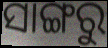
ସାଙ୍ଗରୁ